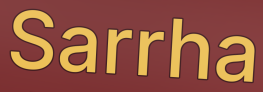
Sarrha